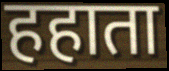
हहाता